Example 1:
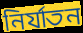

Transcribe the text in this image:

নির্যাতন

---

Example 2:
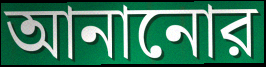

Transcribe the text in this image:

আনানোর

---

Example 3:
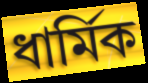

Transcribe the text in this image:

ধার্মিক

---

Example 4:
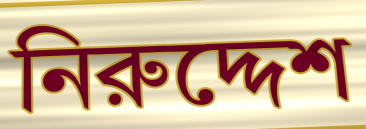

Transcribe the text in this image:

নিরুদ্দেশ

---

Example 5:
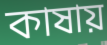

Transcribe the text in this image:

কাষায়